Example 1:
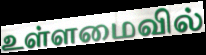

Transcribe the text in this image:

உள்ளமைவில்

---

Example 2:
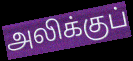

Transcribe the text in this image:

அலிக்குப்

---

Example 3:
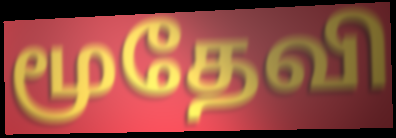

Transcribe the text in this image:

மூதேவி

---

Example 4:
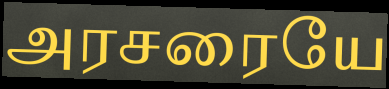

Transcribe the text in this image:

அரசரையே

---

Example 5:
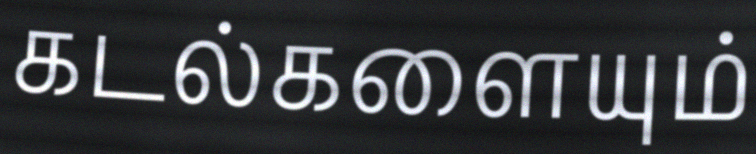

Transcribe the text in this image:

கடல்களையும்